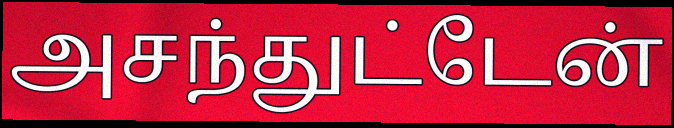
அசந்துட்டேன்